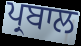
ਪ੍ਰਬਾਲ